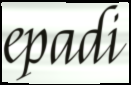
epadi